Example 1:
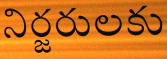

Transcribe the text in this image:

నిర్జరులకు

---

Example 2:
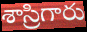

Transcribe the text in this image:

శాస్రిగారు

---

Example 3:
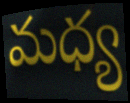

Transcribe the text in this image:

మధ్య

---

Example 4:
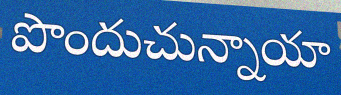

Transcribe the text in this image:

పొందుచున్నాయా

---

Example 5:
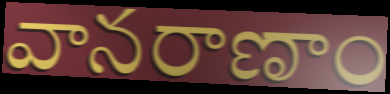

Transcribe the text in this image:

వానరాణాం